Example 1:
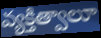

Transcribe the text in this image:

వ్యక్తిత్వాలూ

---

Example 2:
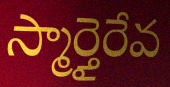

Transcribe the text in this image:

స్మార్తైరేవ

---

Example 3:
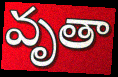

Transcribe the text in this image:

వృతా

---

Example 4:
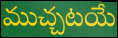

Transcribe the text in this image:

ముచ్చటయే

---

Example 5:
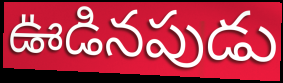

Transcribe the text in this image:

ఊడినపుడు